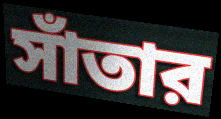
সাঁতার